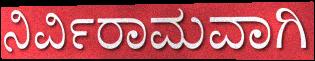
ನಿರ್ವಿರಾಮವಾಗಿ